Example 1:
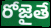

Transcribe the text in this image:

రోజైతే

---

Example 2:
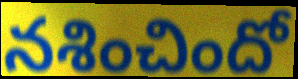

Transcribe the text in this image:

నశించిందో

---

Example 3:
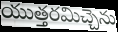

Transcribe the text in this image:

యుత్తరమిచ్చెను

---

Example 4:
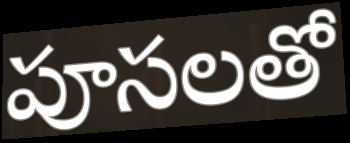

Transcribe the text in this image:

పూసలతో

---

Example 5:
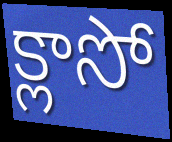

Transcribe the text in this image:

క్లాసో